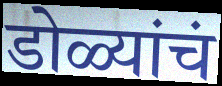
डोळ्यांचं